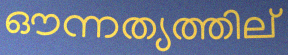
ഔന്നത്യത്തില്